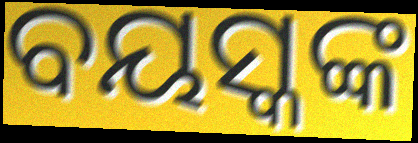
ବୟସ୍କଙ୍କ